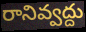
రానివ్వద్దు